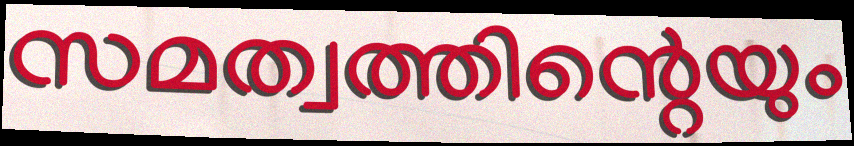
സമത്വത്തിന്റെയും